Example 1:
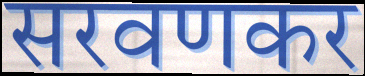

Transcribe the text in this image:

सरवणकर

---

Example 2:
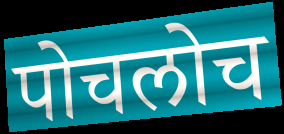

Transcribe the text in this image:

पोचलोच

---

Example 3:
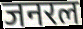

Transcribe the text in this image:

जनरल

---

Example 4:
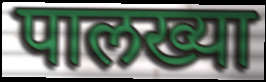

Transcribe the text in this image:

पालख्या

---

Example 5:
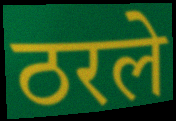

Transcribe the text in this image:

ठरले